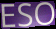
ESO